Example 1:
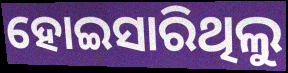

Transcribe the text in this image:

ହୋଇସାରିଥିଲୁ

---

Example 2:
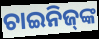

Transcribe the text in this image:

ଚାଇନିଜ୍‌ଙ୍କ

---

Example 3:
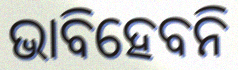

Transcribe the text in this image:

ଭାବିହେବନି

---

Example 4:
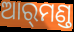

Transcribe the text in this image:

ଆର୍‌ମଣ୍ଡ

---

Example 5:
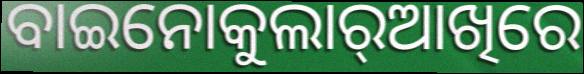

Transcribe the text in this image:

ବାଇନୋକୁଲାର୍‌ଆଖିରେ